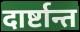
दार्ष्टान्त